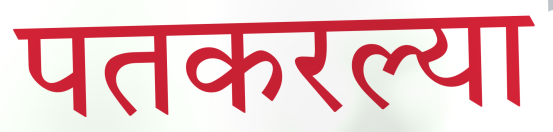
पतकरल्या